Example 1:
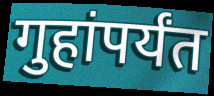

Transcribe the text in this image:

गुहांपर्यंत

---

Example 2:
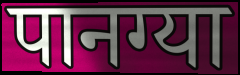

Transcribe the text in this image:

पानग्या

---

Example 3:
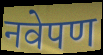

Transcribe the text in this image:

नवेपण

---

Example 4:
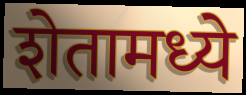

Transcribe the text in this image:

शेतामध्ये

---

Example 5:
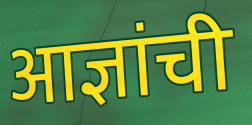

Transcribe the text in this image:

आज्ञांची